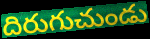
దిరుగుచుండు